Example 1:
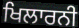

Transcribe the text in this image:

ਖਿਲਾਰਨੀ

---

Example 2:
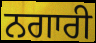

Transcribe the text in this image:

ਨਗਾਰੀ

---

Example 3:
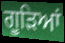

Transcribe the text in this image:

ਗੂੜਿਆਂ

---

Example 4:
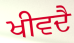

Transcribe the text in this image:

ਖੀਵਦੈ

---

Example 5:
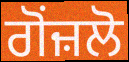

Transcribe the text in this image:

ਗੋਂਜ਼ਲੋ